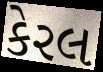
કેરલ